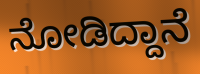
ನೋಡಿದ್ದಾನೆ